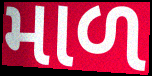
માળ